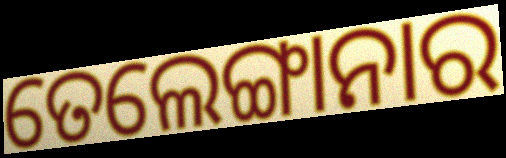
ତେଲେଙ୍ଗାନାର